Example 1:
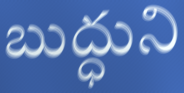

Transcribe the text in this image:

బుద్ధుని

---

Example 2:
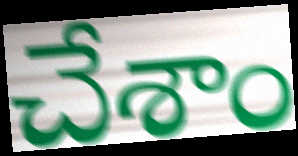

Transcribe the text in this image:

చేశాం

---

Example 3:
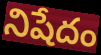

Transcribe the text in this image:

నిషేదం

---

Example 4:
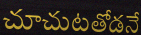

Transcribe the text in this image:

చూచుటతోడనే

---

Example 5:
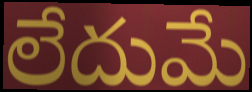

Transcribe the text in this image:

లేదుమే